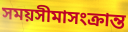
সময়সীমাসংক্রান্ত